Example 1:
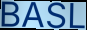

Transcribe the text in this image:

BASL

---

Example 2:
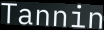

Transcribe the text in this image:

Tannin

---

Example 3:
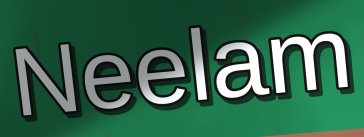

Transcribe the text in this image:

Neelam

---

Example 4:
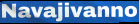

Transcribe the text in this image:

Navajivanno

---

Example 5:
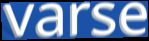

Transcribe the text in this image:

varse